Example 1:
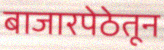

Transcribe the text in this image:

बाजारपेठेतून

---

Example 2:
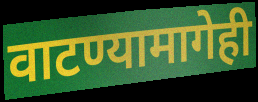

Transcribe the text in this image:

वाटण्यामागेही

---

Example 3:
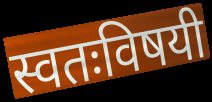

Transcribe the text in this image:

स्वतःविषयी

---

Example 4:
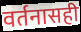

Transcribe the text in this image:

वर्तनासही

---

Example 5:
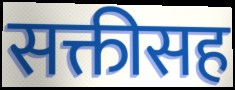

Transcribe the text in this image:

सक्तीसह